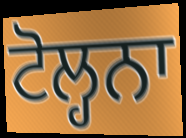
ਟੋਲ੍ਹਨਾ